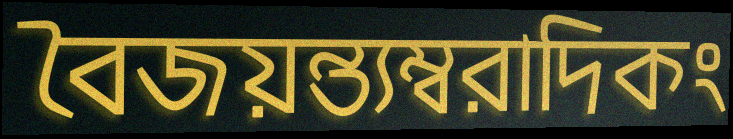
বৈজয়ন্ত্যম্বরাদিকং